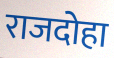
राजदोहा